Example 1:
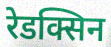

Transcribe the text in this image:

रेडक्सिन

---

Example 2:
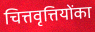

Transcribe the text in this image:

चित्तवृत्तियोंका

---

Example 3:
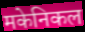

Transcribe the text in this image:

मकेनिकल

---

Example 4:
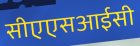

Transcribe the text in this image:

सीएएसआईसी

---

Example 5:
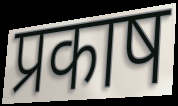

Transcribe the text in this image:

प्रकाष